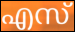
എസ്